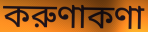
করুণাকণা